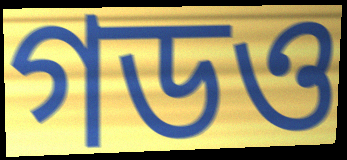
গডও